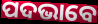
ପଦଭାବେ